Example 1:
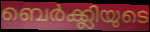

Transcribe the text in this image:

ബെർക്ക്ലിയുടെ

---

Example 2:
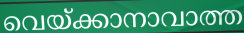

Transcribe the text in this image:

വെയ്ക്കാനാവാത്ത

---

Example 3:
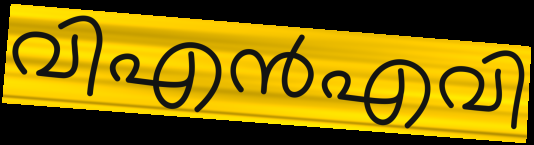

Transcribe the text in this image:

വിഎൻഎവി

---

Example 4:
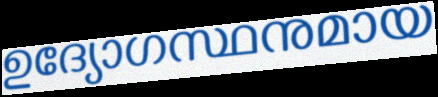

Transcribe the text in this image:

ഉദ്യോഗസ്ഥനുമായ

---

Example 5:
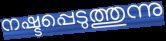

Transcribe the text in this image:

നഷ്ടപ്പെടുത്തുന്നു